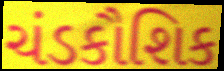
ચંડકૌશિક